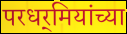
परधर्मियांच्या